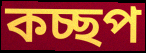
কচ্ছপ